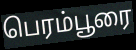
பெரம்பூரை